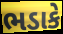
ભડાકે